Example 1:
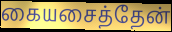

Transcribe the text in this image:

கையசைத்தேன்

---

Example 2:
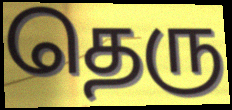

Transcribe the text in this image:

தெரு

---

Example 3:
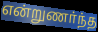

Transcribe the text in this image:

என்றுணர்ந்த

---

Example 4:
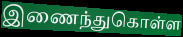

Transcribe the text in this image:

இணைந்துகொள்ள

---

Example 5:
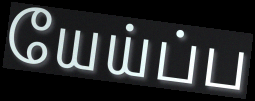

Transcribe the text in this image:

யேய்ப்ப